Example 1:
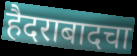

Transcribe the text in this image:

हैदराबादचा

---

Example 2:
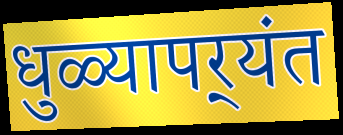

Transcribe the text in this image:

धुळ्यापर्यंत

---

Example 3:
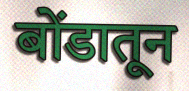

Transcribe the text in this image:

बोंडातून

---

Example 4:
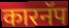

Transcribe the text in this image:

कारनॅप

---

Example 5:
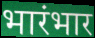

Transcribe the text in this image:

भारंभार